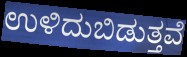
ಉಳಿದುಬಿಡುತ್ತವೆ